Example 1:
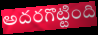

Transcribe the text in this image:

అదరగొట్టింది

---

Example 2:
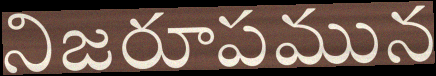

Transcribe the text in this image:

నిజరూపమున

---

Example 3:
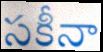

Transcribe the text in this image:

సకీనా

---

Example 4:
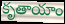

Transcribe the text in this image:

కృతాయాం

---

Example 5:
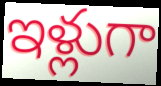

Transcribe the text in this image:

ఇళ్లుగా